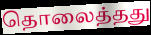
தொலைத்தது